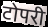
टोपरी